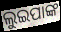
ଲୁଇପାଙ୍କ